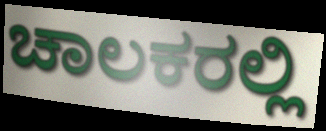
ಚಾಲಕರಲ್ಲಿ